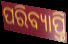
ପରିବ୍ୟାପ୍ତି